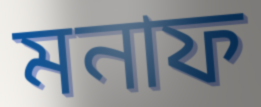
মনাফ